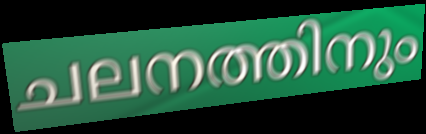
ചലനത്തിനും